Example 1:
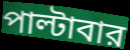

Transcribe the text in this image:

পাল্টাবার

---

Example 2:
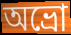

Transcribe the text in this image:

অভ্রো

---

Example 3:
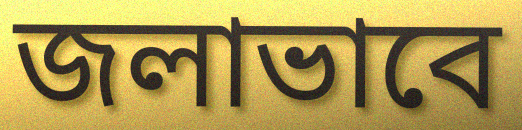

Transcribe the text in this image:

জলাভাবে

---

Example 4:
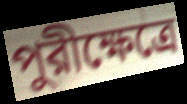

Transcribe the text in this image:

পুরীক্ষেত্রে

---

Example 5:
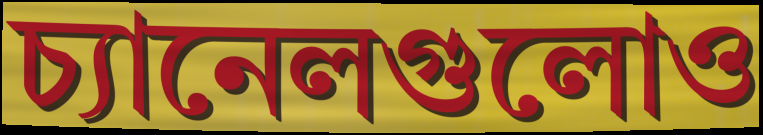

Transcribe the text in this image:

চ্যানেলগুলোও